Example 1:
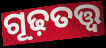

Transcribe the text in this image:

ଗୂଢ଼ତତ୍ତ୍ୱ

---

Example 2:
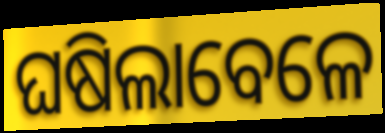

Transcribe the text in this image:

ଘଷିଲାବେଳେ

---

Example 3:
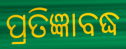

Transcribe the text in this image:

ପ୍ରତିଜ୍ଞାବଦ୍ଧ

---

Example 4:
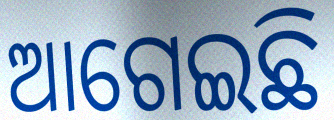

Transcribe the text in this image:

ଆଗେଇଛି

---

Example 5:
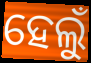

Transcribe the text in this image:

ହେଲୁଁ